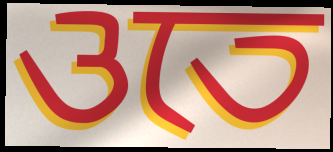
ওতে